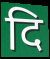
दि